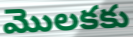
మొలకకు